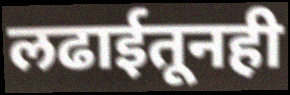
लढाईतूनही